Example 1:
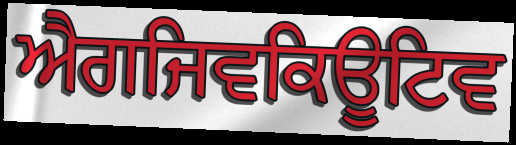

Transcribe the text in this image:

ਐਗਜਿਵਕਿਊਟਿਵ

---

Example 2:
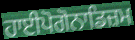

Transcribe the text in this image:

ਹਾਈਪੋਗੋਨਾਡਿਜ਼ਮ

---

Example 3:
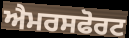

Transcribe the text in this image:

ਐਮਰਸਫੋਰਟ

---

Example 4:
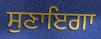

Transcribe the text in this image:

ਸੁਣਾਇਗਾ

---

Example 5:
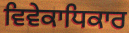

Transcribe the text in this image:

ਵਿਵੇਕਾਧਿਕਾਰ